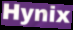
Hynix